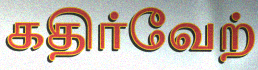
கதிர்வேற்